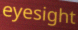
eyesight